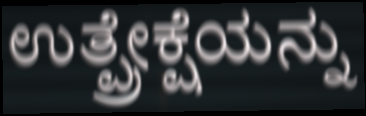
ಉತ್ಪ್ರೇಕ್ಷೆಯನ್ನು